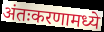
अंतःकरणामध्ये